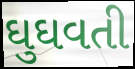
ઘુઘવતી